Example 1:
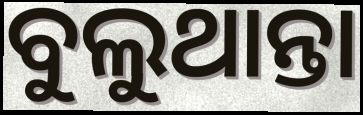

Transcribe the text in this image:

ବୁଲୁଥାନ୍ତା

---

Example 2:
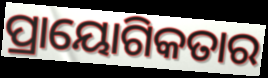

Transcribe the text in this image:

ପ୍ରାୟୋଗିକତାର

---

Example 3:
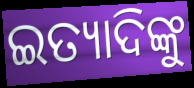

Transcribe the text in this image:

ଇତ୍ଯାଦିଙ୍କୁ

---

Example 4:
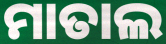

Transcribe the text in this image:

ମାତାଲ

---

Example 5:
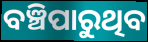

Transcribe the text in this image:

ବଞ୍ଚିପାରୁଥିବ